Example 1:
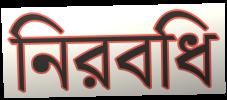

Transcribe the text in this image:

নিরবধি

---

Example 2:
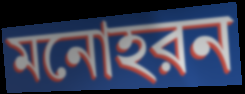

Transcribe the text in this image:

মনোহরন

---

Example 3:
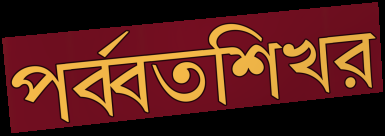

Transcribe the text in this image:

পর্ব্বতশিখর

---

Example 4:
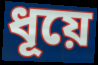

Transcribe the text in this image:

ধূয়ে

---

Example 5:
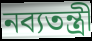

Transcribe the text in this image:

নব্যতন্ত্রী